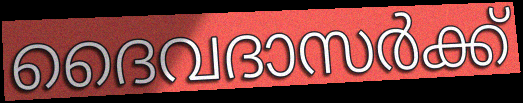
ദൈവദാസർക്ക്